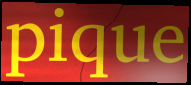
pique